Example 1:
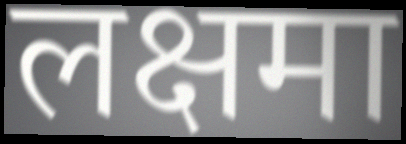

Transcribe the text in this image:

लक्षमा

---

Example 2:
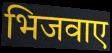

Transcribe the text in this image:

भिजवाए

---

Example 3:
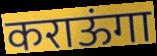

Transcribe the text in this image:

कराऊंगा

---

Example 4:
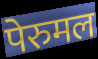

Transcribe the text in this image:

पेरुमल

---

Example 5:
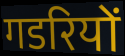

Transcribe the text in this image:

गडरियों